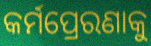
କର୍ମପ୍ରେରଣାକୁ